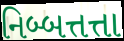
નિબ્બત્તત્તા